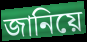
জানিয়ে